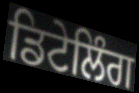
ਡਿਟੇਲਿੰਗ